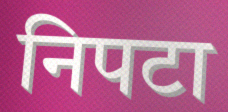
निपटा